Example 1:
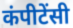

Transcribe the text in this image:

कंपीटेंसी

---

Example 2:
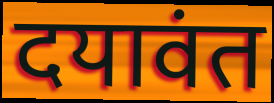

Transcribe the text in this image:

दयावंत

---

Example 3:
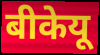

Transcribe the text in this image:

बीकेयू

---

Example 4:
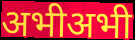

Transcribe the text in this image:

अभीअभी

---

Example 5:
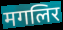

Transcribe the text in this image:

मगलिर